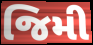
જિમી